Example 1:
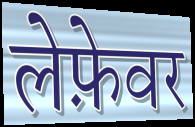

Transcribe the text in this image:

लेफ़ेवर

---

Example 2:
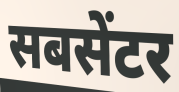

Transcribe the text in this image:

सबसेंटर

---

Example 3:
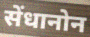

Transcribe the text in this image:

सेंधानोन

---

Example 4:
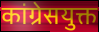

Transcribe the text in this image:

कांग्रेसयुक्त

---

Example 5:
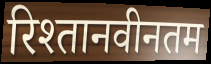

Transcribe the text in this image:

रिश्तानवीनतम